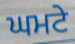
ਘਮਟੇ